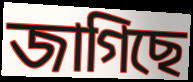
জাগিছে